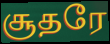
சூதரே